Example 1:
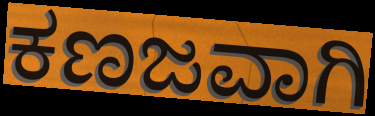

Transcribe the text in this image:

ಕಣಜವಾಗಿ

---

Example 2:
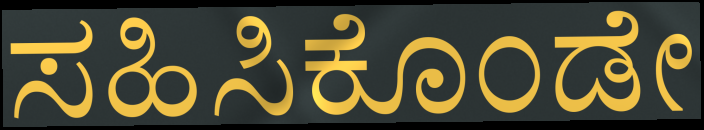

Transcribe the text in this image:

ಸಹಿಸಿಕೊಂಡೇ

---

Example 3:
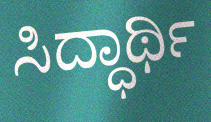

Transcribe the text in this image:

ಸಿದ್ಧಾರ್ಥಿ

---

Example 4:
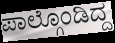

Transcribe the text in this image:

ಪಾಲ್ಗೊಂಡಿದ್ದ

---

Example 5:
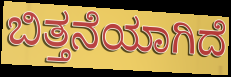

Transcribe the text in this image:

ಬಿತ್ತನೆಯಾಗಿದೆ